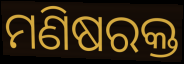
ମଣିଷରକ୍ତ